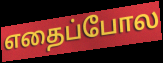
எதைப்போல